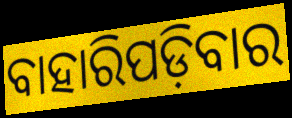
ବାହାରିପଡ଼ିବାର